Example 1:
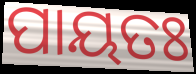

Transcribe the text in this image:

ପାୟତଃ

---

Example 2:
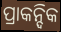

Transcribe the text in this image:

ପ୍ରାକନ୍ଦିକ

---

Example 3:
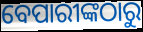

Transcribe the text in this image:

ବେପାରୀଙ୍କଠାରୁ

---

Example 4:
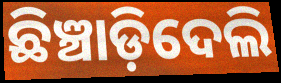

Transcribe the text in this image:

ଛିଞ୍ଚାଡ଼ିଦେଲି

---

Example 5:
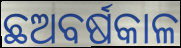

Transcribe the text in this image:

ଛଅବର୍ଷକାଳ